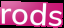
rods